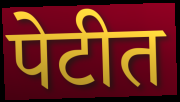
पेटीत